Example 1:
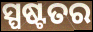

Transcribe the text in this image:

ସ୍ପଷ୍ଟତର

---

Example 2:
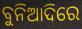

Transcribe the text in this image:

ବୁନିଆଦିରେ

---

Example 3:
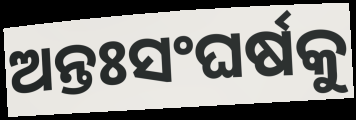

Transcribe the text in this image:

ଅନ୍ତଃସଂଘର୍ଷକୁ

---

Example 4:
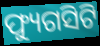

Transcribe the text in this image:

ଫ୍ୟୁଗସିଟି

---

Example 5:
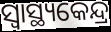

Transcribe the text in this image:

ସ୍ବାସ୍ଥ୍ୟକେନ୍ଦ୍ର